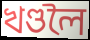
খণ্ডলৈ